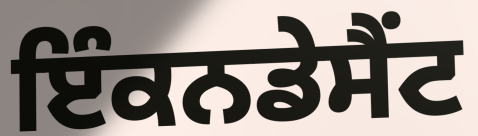
ਇੰਕਨਡੇਸੈਂਟ